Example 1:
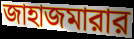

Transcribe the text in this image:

জাহাজমারার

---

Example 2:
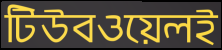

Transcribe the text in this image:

টিউবওয়েলই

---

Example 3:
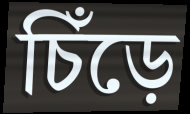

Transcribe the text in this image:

চিঁড়ে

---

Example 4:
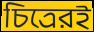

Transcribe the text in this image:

চিত্রেরই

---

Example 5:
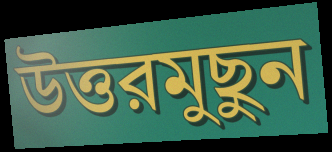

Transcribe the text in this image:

উত্তরমুছুন